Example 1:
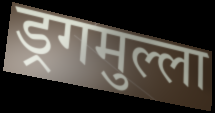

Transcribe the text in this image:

ड्रगमुल्ला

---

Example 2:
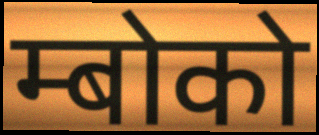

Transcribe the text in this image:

म्बोको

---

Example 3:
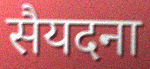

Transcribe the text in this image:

सैयदना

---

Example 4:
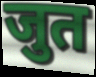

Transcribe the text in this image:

जुत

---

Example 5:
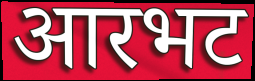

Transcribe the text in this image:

आरभट